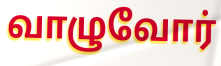
வாழுவோர்